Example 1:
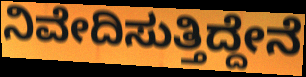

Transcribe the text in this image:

ನಿವೇದಿಸುತ್ತಿದ್ದೇನೆ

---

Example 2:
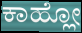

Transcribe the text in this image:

ಕಾಹ್ಲೋ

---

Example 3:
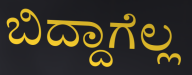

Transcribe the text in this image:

ಬಿದ್ದಾಗೆಲ್ಲ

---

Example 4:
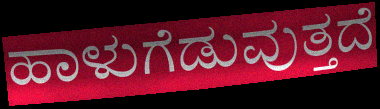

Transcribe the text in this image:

ಹಾಳುಗೆಡುವುತ್ತದೆ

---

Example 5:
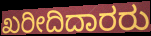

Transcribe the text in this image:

ಖರೀದಿದಾರರು